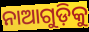
ନାଆଗୁଡ଼ିକୁ